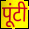
पूंटी